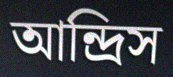
আন্দ্রিস